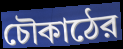
চৌকাঠের